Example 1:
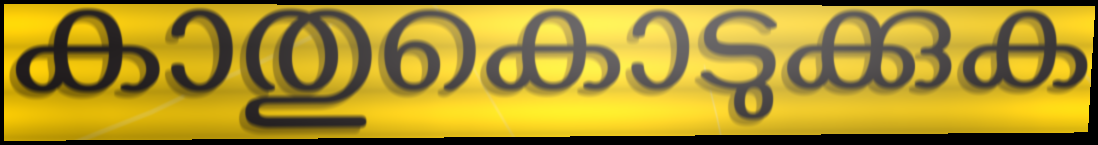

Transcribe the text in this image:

കാതുകൊടുക്കുക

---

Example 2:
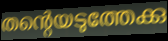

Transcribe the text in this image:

തന്റെയടുത്തേക്കു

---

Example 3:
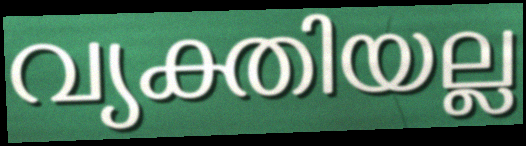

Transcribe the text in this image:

വ്യക്തിയല്ല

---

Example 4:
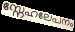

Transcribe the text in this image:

സ്നേഹലേപനം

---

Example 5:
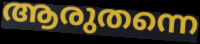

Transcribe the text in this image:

ആരുതന്നെ